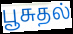
பூசுதல்